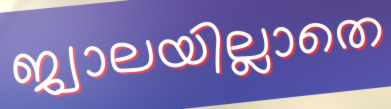
ജ്വാലയില്ലാതെ